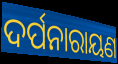
ଦର୍ପନାରାୟଣ